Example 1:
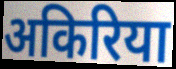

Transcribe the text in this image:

अकिरिया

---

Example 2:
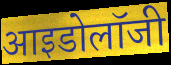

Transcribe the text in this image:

आइडोलॉजी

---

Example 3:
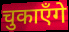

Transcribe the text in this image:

चुकाएँगे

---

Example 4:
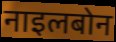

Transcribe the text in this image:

नाइलबोन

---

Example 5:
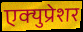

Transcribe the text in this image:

एक्युप्रेशर